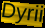
Dyrii